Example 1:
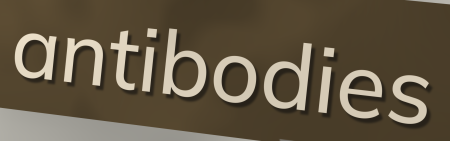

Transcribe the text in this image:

antibodies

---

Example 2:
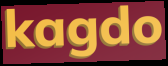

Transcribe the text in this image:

kagdo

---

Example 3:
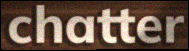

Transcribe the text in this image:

chatter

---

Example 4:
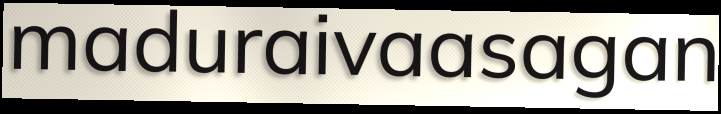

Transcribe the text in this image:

maduraivaasagan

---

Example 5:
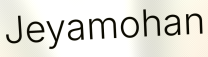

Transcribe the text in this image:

Jeyamohan